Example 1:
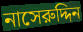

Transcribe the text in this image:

নাসেরুদ্দিন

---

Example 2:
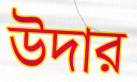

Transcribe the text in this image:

উদার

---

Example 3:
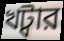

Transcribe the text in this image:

খট্বার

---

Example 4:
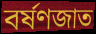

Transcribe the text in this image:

বর্ষণজাত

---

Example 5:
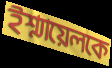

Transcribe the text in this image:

ইশ্মায়েলকে